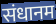
संधानम